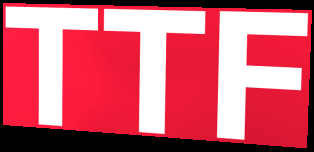
TTF